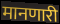
मानणारी